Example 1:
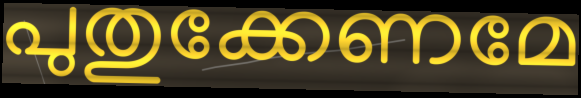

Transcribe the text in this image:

പുതുക്കേണമേ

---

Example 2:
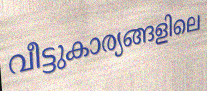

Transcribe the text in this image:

വീട്ടുകാര്യങ്ങളിലെ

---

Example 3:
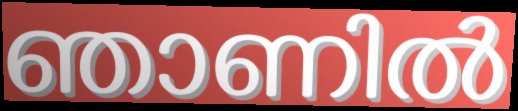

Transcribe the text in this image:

ഞാണിൽ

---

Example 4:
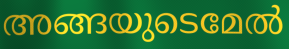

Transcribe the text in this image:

അങ്ങയുടെമേൽ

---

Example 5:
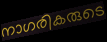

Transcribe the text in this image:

നാഗരികരുടെ